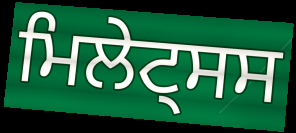
ਮਿਲੇਟ੍ਸਸ